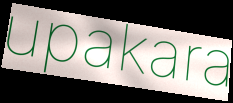
upakara